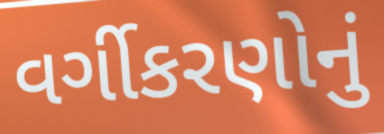
વર્ગીકરણોનું